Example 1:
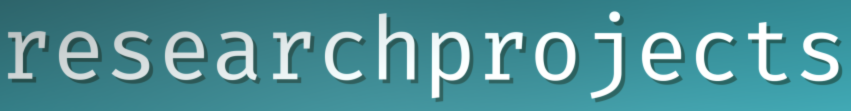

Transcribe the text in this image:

researchprojects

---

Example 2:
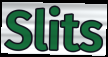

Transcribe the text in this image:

Slits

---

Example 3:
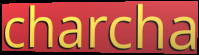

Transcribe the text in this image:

charcha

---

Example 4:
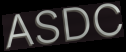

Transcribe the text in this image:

ASDC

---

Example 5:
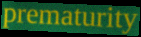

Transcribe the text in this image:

prematurity